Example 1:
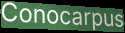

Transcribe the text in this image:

Conocarpus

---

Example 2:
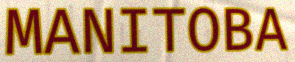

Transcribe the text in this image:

MANITOBA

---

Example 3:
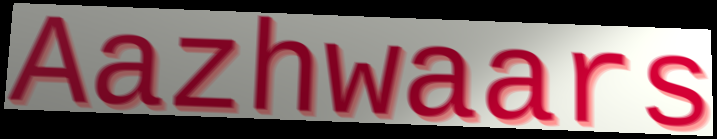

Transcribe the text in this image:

Aazhwaars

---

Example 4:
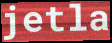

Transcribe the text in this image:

jetla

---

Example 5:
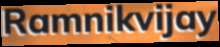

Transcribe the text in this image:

Ramnikvijay